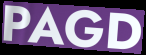
PAGD